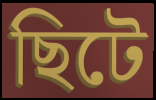
ছিটে